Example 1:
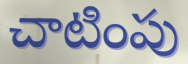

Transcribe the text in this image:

చాటింపు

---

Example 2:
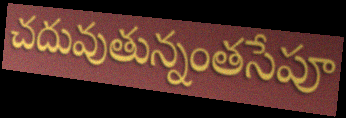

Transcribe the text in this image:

చదువుతున్నంతసేపూ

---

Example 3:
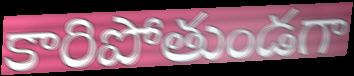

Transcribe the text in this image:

కారిపోతుండగా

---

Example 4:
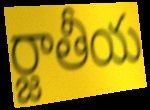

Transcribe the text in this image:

ర్జాతీయ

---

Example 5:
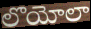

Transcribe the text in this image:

లొయోలా